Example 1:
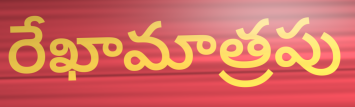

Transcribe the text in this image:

రేఖామాత్రపు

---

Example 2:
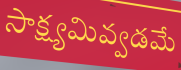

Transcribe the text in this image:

సాక్ష్యమివ్వడమే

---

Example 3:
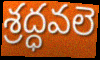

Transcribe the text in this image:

శ్రద్ధవలె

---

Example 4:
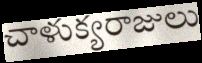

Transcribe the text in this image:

చాళుక్యరాజులు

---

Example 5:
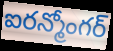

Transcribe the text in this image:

ఐరన్మోంగర్